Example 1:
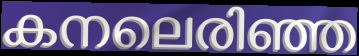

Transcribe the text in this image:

കനലെരിഞ്ഞ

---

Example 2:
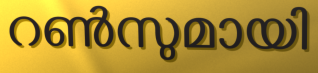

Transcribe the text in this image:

റൺസുമായി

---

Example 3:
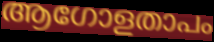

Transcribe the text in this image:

ആഗോളതാപം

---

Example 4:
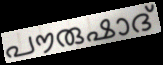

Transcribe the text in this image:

പൗരുഷാദ്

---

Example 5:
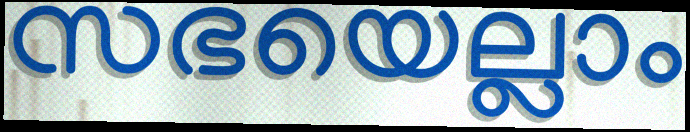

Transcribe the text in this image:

സഭയെല്ലാം